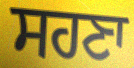
ਸਹਣਾ